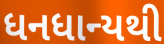
ધનધાન્યથી